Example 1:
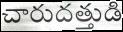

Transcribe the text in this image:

చారుదత్తుడి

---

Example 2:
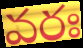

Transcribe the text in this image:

వరః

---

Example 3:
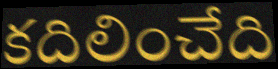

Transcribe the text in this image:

కదిలించేది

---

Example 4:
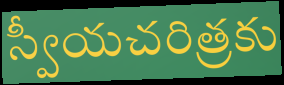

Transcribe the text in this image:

స్వీయచరిత్రకు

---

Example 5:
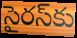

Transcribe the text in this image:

సైరస్‌కు